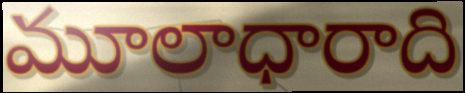
మూలాధారాది